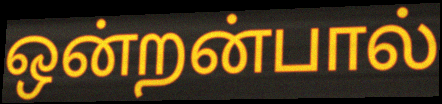
ஒன்றன்பால்